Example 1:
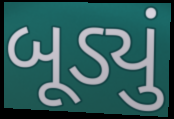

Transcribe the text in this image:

બૂડ્યું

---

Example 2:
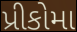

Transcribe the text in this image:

પ્રીકોમા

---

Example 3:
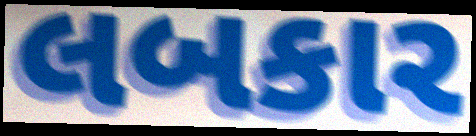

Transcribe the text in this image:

લબકાર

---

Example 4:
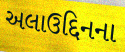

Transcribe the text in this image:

અલાઉદ્દિનના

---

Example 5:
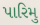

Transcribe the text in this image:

પારિમુ